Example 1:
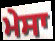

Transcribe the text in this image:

ਮੇਸਾ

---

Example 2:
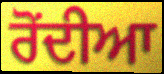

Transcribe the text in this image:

ਰੋਂਦੀਆ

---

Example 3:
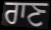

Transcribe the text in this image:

ਰਾਣ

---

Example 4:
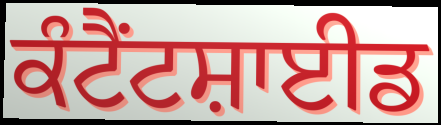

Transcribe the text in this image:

ਕੰਟੈਂਟਸ਼ਾਈਡ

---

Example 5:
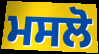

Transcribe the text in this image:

ਮਸਲੋ